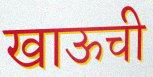
खाऊची